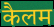
कैलम